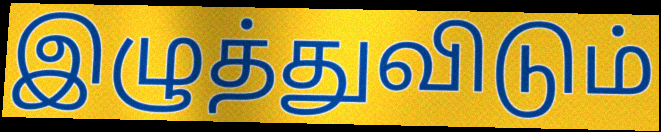
இழுத்துவிடும்